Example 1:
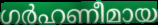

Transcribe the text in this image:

ഗർഹണീമായ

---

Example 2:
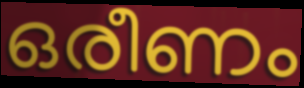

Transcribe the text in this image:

ഒരീണം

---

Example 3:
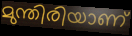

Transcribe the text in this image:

മുന്തിരിയാണ്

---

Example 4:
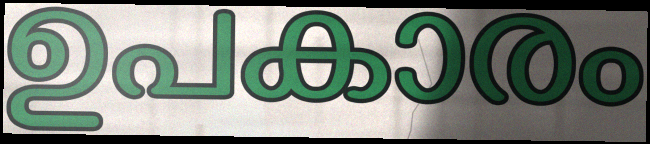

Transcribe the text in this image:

ഉപകാരം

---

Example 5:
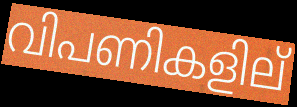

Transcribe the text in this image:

വിപണികളില്